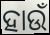
ହାଉଁ